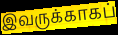
இவருக்காகப்